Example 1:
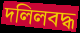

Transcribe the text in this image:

দলিলবদ্ধ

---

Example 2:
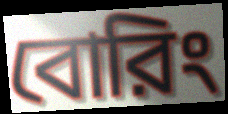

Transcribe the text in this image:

বোরিং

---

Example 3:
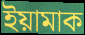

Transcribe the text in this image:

ইয়ামাক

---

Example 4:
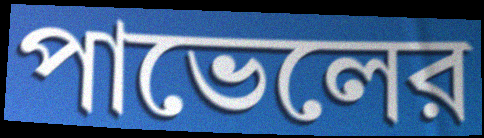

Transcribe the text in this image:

পাভেলের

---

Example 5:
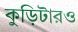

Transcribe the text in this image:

কুড়িটারও